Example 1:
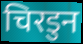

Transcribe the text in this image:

चिरडुन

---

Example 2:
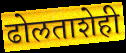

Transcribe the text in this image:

ढोलताशेही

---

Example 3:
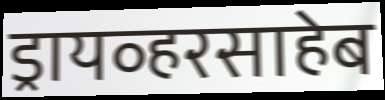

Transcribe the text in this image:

ड्रायव्हरसाहेब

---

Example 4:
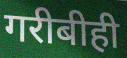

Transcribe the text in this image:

गरीबीही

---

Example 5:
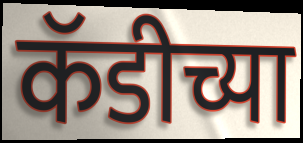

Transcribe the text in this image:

कॅडीच्या